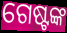
ଗେଷ୍ଟଙ୍କ